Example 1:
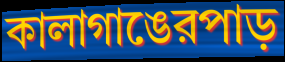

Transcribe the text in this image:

কালাগাঙেরপাড়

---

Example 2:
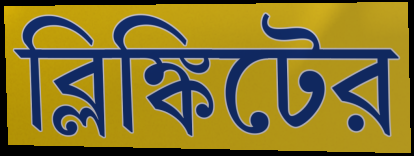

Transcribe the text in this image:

ব্লিঙ্কিটের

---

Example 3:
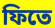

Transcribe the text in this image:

ফিতে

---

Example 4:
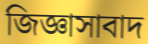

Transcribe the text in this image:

জিজ্ঞাসাবাদ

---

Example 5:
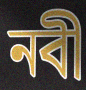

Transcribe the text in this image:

নবী